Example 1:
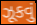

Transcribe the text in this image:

ઝૂકવું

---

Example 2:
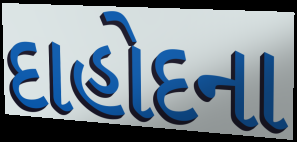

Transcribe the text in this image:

દાહોદના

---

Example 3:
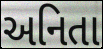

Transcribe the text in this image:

અનિતા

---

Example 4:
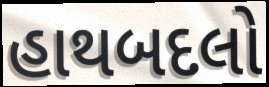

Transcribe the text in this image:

હાથબદલો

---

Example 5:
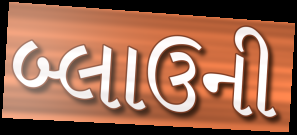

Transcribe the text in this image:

બ્લાઉની